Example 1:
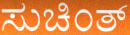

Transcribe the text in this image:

ಸುಚಿಂತ್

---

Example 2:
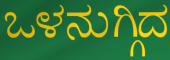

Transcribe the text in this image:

ಒಳನುಗ್ಗಿದ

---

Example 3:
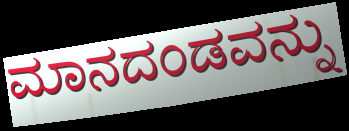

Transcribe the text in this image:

ಮಾನದಂಡವನ್ನು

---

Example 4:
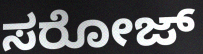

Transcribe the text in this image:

ಸರೋಜ್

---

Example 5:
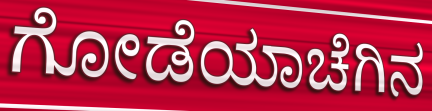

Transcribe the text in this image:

ಗೋಡೆಯಾಚೆಗಿನ